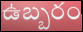
ఉబ్బరం